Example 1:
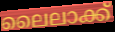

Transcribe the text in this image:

ലൈലാക്ക്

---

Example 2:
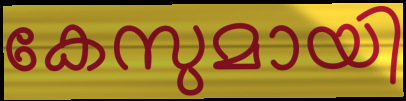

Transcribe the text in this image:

കേസുമായി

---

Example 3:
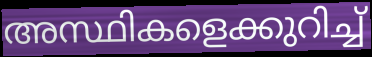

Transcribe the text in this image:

അസ്ഥികളെക്കുറിച്ച്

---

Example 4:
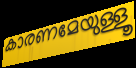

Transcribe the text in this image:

കാരണമേയുള്ളൂ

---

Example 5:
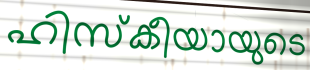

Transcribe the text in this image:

ഹിസ്കീയായുടെ